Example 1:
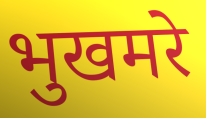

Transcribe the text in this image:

भुखमरे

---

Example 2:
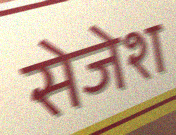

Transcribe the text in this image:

सेजेश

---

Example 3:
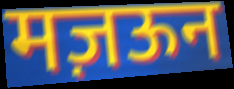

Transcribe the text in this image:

मज़ऊन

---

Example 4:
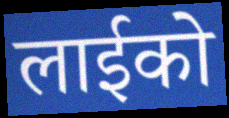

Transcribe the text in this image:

लाईको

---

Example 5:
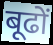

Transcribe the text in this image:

बूढों